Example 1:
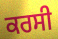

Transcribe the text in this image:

ਕਰਸੀ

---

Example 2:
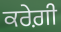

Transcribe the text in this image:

ਕਰੇਗ਼ੀ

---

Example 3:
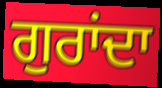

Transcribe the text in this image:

ਗੁਰਾਂਦਾ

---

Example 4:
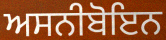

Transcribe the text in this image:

ਅਸਨੀਬੋਇਨ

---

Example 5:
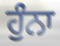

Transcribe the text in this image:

ਹੁੰਨਾ